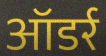
ऑडर्र